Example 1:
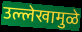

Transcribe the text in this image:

उल्लेखामुळे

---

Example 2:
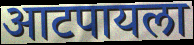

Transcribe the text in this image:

आटपायला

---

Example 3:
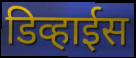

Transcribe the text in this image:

डिव्हाईस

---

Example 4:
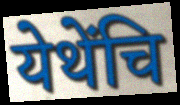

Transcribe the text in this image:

येथेंचि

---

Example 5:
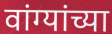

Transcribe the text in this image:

वांग्यांच्या